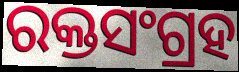
ରକ୍ତସଂଗ୍ରହ